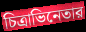
চিত্রাভিনেতার